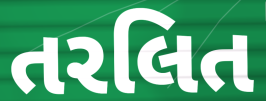
તરલિત